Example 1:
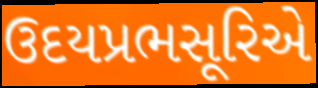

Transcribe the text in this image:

ઉદયપ્રભસૂરિએ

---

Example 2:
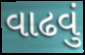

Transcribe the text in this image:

વાઢવું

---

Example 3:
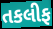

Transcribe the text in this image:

તકલીફ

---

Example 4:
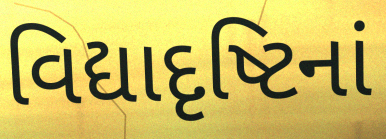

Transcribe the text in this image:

વિદ્યાદૃષ્ટિનાં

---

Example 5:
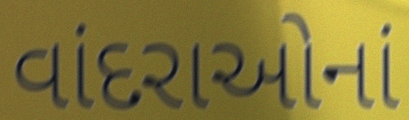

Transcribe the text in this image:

વાંદરાઓનાં